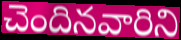
చెందినవారిని